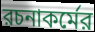
রচনাকর্মের